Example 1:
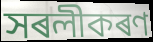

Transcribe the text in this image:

সৰলীকৰণ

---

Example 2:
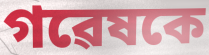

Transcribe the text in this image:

গৱেষকে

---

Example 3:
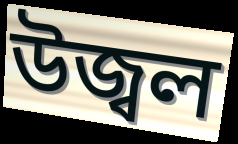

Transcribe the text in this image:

উজ্বল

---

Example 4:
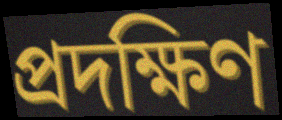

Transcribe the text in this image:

প্ৰদক্ষিণ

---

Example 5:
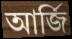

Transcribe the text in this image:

আৰ্জি